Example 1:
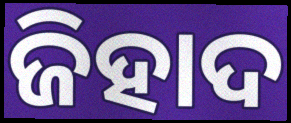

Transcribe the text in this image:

ଜିହାଦ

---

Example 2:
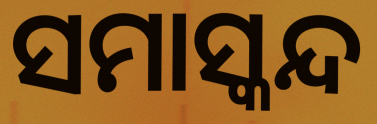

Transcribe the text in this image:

ସମାସ୍କନ୍ଦ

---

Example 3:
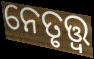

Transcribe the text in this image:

ନେତୃତ୍ତ୍ୱ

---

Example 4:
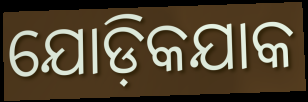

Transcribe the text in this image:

ଯୋଡ଼ିକଯାକ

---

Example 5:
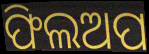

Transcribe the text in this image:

ଫିଲଅପ